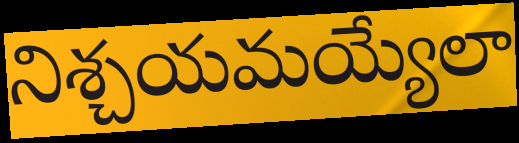
నిశ్చయమయ్యేలా